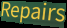
Repairs